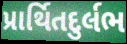
પ્રાર્થિતદુર્લભ